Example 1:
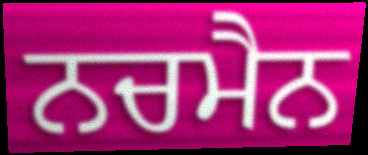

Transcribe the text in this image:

ਨਚਮੈਨ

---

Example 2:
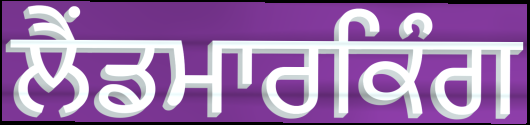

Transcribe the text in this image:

ਲੈਂਡਮਾਰਕਿੰਗ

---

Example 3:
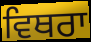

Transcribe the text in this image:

ਵਿਥਰਾ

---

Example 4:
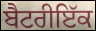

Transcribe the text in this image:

ਬੈਟਰੀਇੱਕ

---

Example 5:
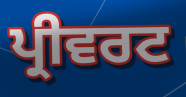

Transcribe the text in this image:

ਪ੍ਰੀਵਰਟ